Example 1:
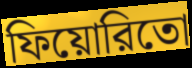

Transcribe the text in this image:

ফিয়োরিতো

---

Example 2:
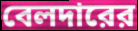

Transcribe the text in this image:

বেলদারের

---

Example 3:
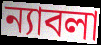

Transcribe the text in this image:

ন্যাবলা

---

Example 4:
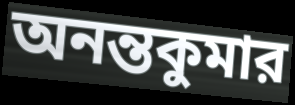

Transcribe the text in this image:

অনন্তকুমার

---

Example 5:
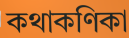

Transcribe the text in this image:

কথাকণিকা